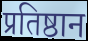
प्रतिष्ठान